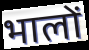
भालों